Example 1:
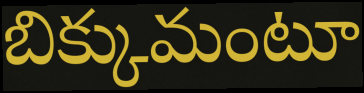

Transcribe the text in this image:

బిక్కుమంటూ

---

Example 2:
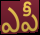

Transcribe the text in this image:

ఎపీ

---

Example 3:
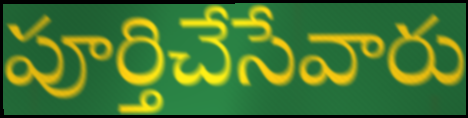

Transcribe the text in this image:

పూర్తిచేసేవారు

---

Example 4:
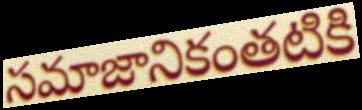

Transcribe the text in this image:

సమాజానికంతటికి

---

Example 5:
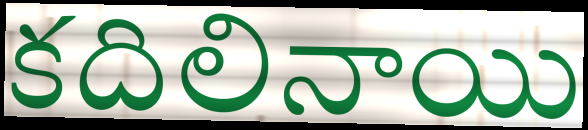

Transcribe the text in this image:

కదిలినాయి